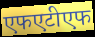
एफएटीएफ